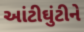
આંટીઘુંટીને